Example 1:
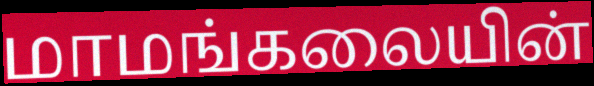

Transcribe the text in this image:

மாமங்கலையின்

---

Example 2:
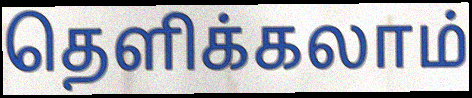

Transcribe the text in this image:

தெளிக்கலாம்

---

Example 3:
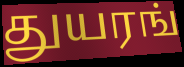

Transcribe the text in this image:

துயரங்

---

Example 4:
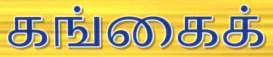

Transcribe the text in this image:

கங்கைக்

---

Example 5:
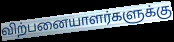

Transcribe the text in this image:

விற்பனையாளர்களுக்கு